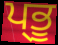
ਪ੍ਭੂ